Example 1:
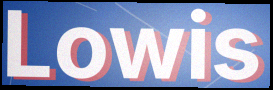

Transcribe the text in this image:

Lowis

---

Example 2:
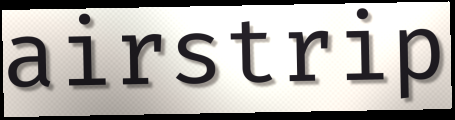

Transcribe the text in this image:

airstrip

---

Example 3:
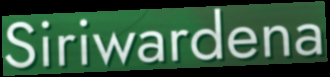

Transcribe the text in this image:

Siriwardena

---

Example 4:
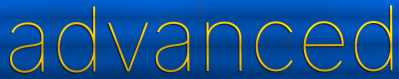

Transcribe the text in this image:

advanced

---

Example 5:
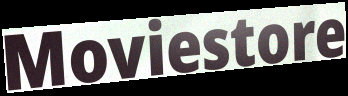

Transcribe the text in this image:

Moviestore